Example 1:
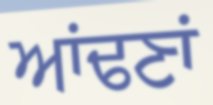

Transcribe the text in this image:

ਆਂਢਣਾਂ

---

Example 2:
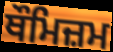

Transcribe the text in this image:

ਥੌਮਿਜ਼ਮ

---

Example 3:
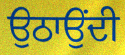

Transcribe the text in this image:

ਉਠਾਉਂਦੀ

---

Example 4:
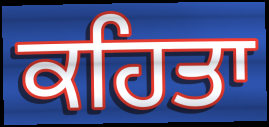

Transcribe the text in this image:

ਕਹਿਤਾ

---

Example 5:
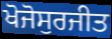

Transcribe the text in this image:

ਖੋਜੋਸੁਰਜੀਤ